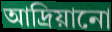
আদ্রিয়ানো